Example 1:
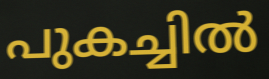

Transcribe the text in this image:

പുകച്ചിൽ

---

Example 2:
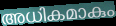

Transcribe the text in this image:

അധികമാകും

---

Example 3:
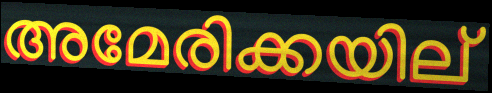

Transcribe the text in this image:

അമേരിക്കയില്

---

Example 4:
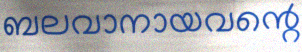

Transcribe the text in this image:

ബലവാനായവന്റെ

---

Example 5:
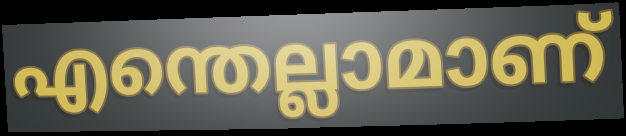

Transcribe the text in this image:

എന്തെല്ലാമാണ്